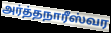
அர்த்தநாரீஸ்வர